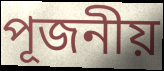
পূজনীয়